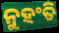
ନୁହଂତି